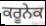
ਕਰੂਨੇਕ